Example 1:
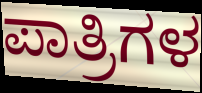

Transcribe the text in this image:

ಪಾತ್ರಿಗಳ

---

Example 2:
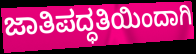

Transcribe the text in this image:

ಜಾತಿಪದ್ಧತಿಯಿಂದಾಗಿ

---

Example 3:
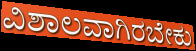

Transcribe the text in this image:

ವಿಶಾಲವಾಗಿರಬೇಕು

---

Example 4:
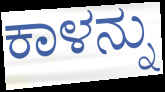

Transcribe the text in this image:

ಕಾಳನ್ನು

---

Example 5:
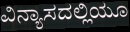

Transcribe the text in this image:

ವಿನ್ಯಾಸದಲ್ಲಿಯೂ